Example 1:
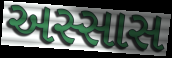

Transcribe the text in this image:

અસ્સાસ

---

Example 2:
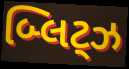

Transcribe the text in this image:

બ્લિટ્ઝ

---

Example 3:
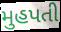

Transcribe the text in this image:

મુહપતી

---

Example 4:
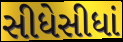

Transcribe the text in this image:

સીધેસીધાં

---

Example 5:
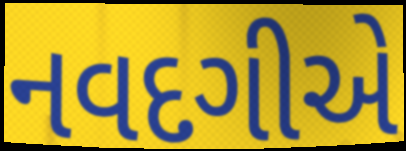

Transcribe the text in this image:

નવદગીએ